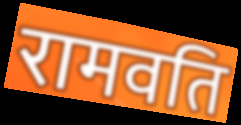
रामवति